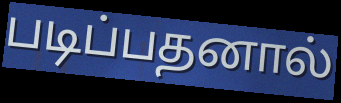
படிப்பதனால்